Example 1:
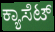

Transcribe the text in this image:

ಕ್ಯಾಸೆಟ್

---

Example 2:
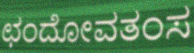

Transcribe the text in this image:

ಛಂದೋವತಂಸ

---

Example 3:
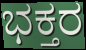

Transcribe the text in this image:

ಭಕ್ತರ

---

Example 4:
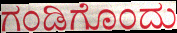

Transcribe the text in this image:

ಗಂಡಿಗೊಂದು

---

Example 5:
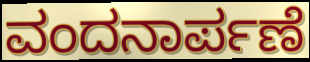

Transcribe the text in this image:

ವಂದನಾರ್ಪಣೆ